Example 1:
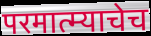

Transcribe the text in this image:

परमात्म्याचेच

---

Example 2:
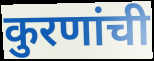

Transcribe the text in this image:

कुरणांची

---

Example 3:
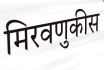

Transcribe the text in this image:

मिरवणुकीस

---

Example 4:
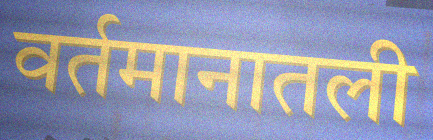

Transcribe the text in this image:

वर्तमानातली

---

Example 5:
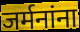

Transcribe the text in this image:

जर्मनांना